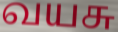
வயசு